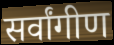
सर्वांगीण